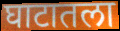
घाटातला